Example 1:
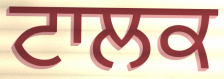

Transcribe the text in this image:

ਟਾਲਕ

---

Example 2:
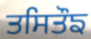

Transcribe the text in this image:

ਤਸਿਤੌਙ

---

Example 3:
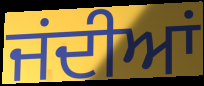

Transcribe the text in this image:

ਜਂਦੀਆਂ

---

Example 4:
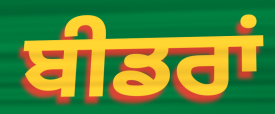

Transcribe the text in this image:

ਬੀਡਰਾਂ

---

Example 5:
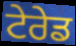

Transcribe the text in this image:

ਟੇਰੇਡ